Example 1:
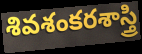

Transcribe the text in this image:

శివశంకరశాస్త్రి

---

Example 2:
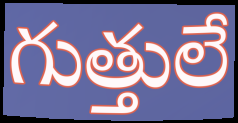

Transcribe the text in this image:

గుత్తులే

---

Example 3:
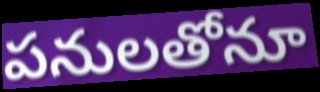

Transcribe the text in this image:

పనులతోనూ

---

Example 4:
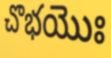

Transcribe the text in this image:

చొభయొః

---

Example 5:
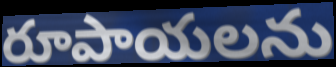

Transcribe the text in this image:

రూపాయలను